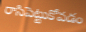
రాసిపెట్టుకోవడం